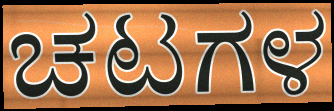
ಚಟಗಳ